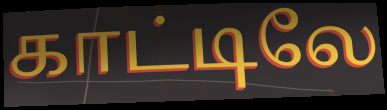
காட்டிலே